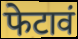
फेटावं